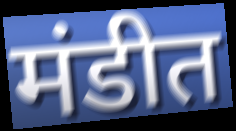
मंडीत